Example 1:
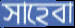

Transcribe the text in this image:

সাহেবা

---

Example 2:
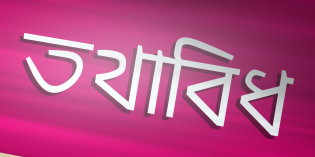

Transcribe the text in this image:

তথাবিধ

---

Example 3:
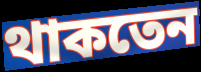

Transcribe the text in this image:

থাকতেন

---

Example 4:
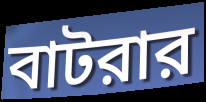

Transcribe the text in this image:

বাটরার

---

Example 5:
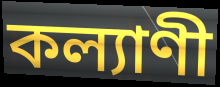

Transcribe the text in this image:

কল্যাণী